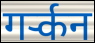
गर्र्कन